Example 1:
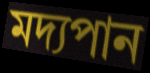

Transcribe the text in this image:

মদ্যপান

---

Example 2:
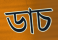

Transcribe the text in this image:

ডাচ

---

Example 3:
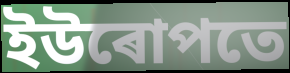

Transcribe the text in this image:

ইউৰোপতে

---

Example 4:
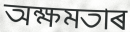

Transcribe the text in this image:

অক্ষমতাৰ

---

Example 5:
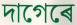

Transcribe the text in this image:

দাগেৰে